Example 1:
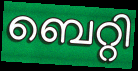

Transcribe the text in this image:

ബെറ്റി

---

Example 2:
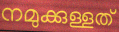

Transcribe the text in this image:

നമുക്കുള്ളത്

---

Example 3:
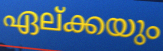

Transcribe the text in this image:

ഏല്ക്കയും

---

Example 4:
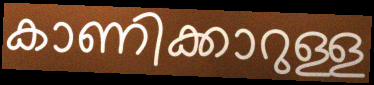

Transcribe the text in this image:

കാണിക്കാറുള്ള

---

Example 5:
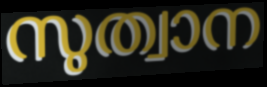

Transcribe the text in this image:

സുത്വാന